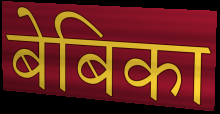
बेबिका